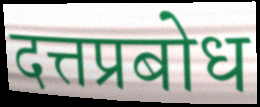
दत्तप्रबोध